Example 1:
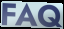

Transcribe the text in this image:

FAQ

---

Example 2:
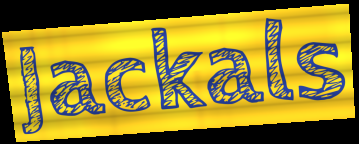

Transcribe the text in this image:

Jackals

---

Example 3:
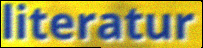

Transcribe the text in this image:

literatur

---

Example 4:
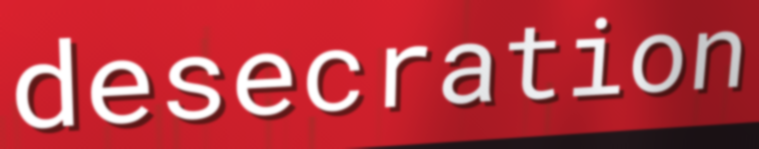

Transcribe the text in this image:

desecration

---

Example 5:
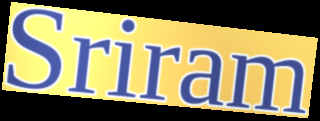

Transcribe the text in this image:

Sriram